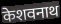
केशवनाथ